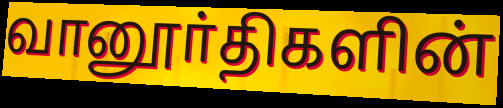
வானூர்திகளின்